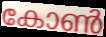
കോൺ